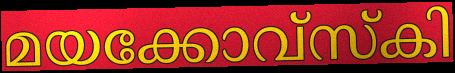
മയക്കോവ്സ്കി